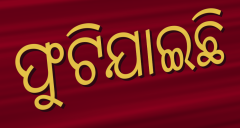
ଫୁଟିଯାଇଛି